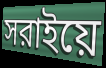
সরাইয়ে